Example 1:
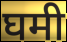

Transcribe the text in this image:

घमी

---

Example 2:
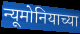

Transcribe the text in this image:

न्यूमोनियाच्या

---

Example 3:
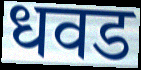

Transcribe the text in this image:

धवड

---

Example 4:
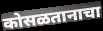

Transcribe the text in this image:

कोसळतानाचा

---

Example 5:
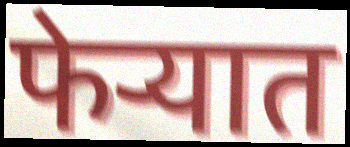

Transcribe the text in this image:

फेऱ्यात